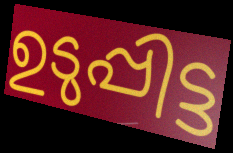
ഉടുപ്പിട്ട